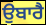
ਉਬਾਰੈ